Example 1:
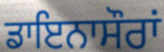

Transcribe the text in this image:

ਡਾਇਨਾਸੌਰਾਂ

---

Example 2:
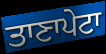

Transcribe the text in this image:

ਤਾਣਾਪੇਟਾ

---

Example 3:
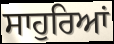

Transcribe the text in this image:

ਸਾਹੁਰਿਆਂ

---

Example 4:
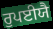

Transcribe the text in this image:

ਰੁਪਈਯੈ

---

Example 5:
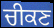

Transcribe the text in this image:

ਚੀਕਣ